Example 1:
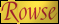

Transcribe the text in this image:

Rowse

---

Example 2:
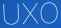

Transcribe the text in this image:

UXO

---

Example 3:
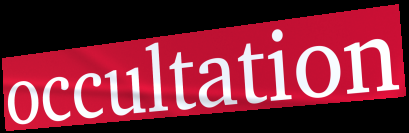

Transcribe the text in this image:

occultation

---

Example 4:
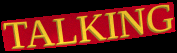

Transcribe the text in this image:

TALKING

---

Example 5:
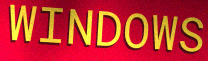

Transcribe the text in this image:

WINDOWS